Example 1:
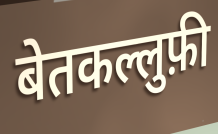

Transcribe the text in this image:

बेतकल्लुफ़ी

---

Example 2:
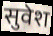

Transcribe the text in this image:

सुवेश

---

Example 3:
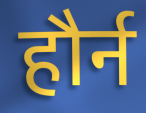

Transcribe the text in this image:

हौर्न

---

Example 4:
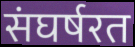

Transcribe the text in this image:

संघर्षरत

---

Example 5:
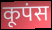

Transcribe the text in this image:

कूपंस